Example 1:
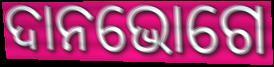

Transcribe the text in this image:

ଦାନଭୋଗେ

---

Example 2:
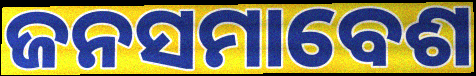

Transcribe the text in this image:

ଜନସମାବେଶ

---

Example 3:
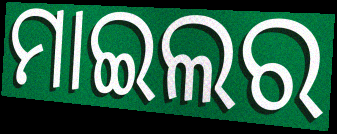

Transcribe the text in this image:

ମାଇଲର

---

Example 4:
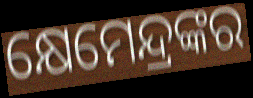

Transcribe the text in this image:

କ୍ଷେମେନ୍ଦ୍ରଙ୍କର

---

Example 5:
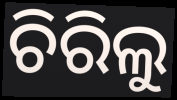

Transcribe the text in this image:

ଚିରିଲୁ